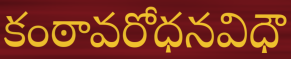
కంఠావరోధనవిధౌ